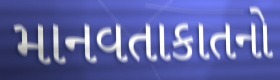
માનવતાકાતનો